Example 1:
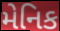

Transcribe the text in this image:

મેનિક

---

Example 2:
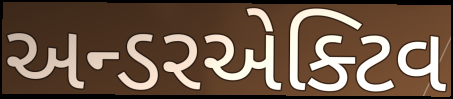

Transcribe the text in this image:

અન્ડરએક્ટિવ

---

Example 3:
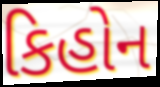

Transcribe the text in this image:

કિહોન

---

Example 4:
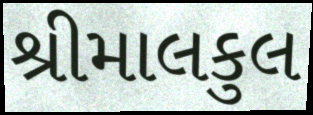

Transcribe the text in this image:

શ્રીમાલકુલ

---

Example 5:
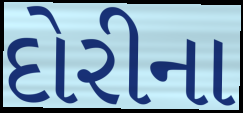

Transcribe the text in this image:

દોરીના